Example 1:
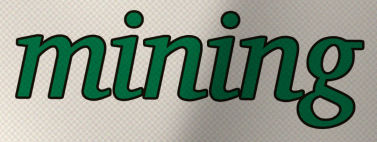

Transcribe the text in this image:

mining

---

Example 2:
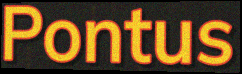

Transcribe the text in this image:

Pontus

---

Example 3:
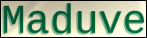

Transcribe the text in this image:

Maduve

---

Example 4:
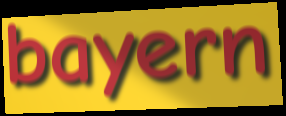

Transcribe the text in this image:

bayern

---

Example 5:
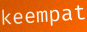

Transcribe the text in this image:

keempat